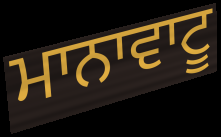
ਮਾਨਾਵਾਟੂ